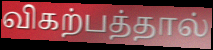
விகற்பத்தால்